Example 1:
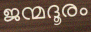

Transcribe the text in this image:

ജന്മദൂരം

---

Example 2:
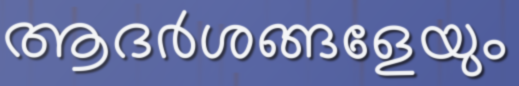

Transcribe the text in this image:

ആദർശങ്ങളേയും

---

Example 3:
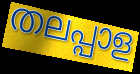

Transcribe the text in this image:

തലപ്പാള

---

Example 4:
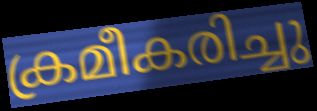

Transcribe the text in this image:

ക്രമീകരിച്ചു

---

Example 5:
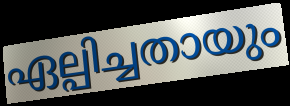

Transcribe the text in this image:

ഏല്പിച്ചതായും